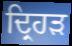
ਦ੍ਰਿਹੜ